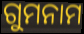
ଗୁମନାମ